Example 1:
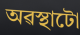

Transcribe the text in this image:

অৱস্থাটো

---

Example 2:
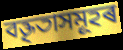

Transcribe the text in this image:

বক্তৃতাসমূহৰ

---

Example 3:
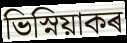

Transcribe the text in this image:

ভিস্নিয়াকৰ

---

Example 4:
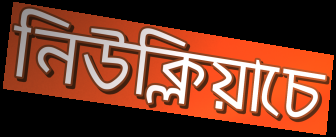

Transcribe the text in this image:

নিউক্লিয়াচে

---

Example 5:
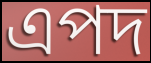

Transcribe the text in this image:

এপদ